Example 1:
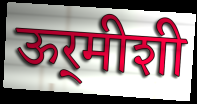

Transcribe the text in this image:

ऊर्मीशी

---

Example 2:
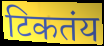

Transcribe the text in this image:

टिकतंय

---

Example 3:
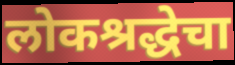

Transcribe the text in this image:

लोकश्रद्धेचा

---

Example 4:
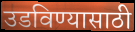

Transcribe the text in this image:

उडविण्यासाठी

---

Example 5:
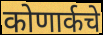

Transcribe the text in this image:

कोणार्कचे